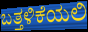
ಬತ್ತಳಿಕೆಯಲಿ